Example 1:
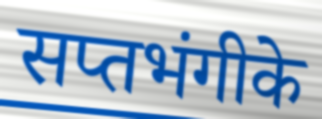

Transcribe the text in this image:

सप्तभंगीके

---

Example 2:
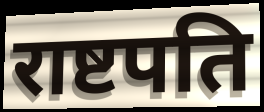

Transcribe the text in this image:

राष्टपति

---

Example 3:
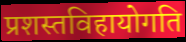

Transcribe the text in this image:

प्रशस्तविहायोगति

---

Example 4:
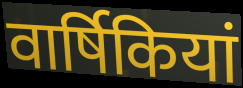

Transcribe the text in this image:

वार्षिकियां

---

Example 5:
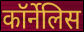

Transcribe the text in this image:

कॉर्नेलिस